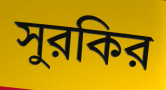
সুরকির